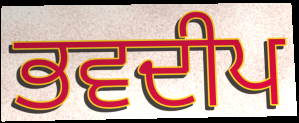
ਭਵਦੀਪ